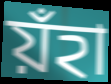
য়ঁহা